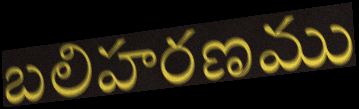
బలిహరణము